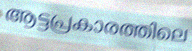
ആട്ടപ്രകാരത്തിലെ